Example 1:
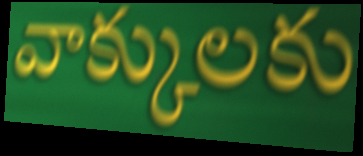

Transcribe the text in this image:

వాక్కులకు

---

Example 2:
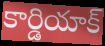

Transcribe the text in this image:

కార్డియాక్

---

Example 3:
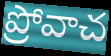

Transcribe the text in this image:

ప్రోవాచ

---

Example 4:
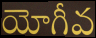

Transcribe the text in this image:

యోగీవ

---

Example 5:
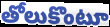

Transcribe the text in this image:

తోలుకొంటూ